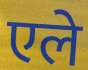
एले